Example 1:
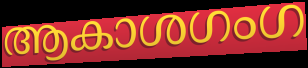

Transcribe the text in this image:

ആകാശഗംഗ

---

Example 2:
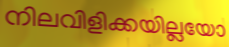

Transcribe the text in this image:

നിലവിളിക്കയില്ലയോ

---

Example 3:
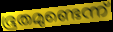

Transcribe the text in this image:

ഭൂതമുണ്ടെന്ന്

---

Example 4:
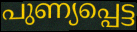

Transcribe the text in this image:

പുണ്യപ്പെട്ട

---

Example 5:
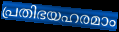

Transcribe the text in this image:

പ്രതിഭയഹരമാം